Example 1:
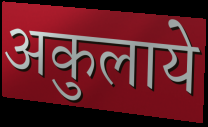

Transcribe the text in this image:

अकुलाये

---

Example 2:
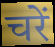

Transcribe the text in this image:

चरें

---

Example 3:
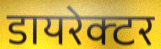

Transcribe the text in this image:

डायरेक्‍टर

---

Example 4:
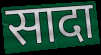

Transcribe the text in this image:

सादा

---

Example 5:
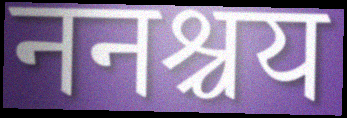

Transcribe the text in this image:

ननश्चय